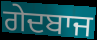
ਗੇਦਬਾਜ